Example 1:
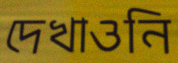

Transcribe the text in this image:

দেখাওনি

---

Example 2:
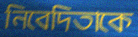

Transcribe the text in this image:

নিবেদিতাকে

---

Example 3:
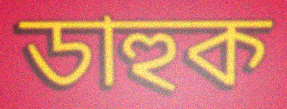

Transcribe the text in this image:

ডাহুক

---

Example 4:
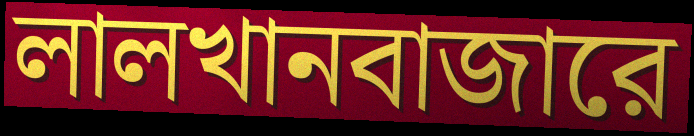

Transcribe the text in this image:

লালখানবাজারে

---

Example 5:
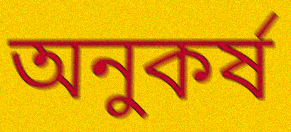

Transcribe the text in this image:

অনুকর্ষ